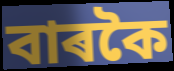
বাৰকৈ